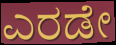
ಎರಡೇ